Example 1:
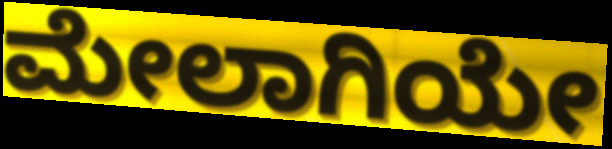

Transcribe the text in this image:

ಮೇಲಾಗಿಯೇ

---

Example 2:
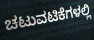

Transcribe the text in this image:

ಚಟುವಟಿಕೆಗಳಲ್ಲಿ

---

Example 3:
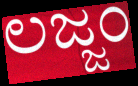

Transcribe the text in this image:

ಲಜ್ಜಂ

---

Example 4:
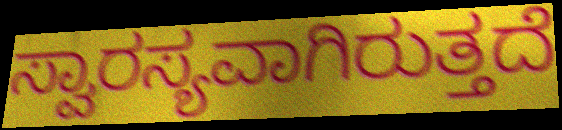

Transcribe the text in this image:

ಸ್ವಾರಸ್ಯವಾಗಿರುತ್ತದೆ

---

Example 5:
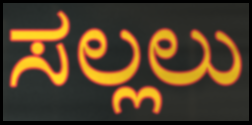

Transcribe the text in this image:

ಸಲ್ಲಲು